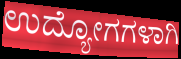
ಉದ್ಯೋಗಗಳಾಗಿ